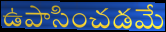
ఉపాసించడమే